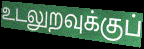
உடலுறவுக்குப்